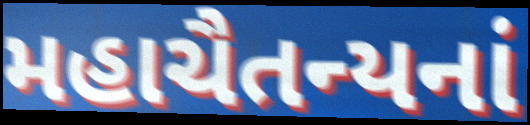
મહાચૈતન્યનાં